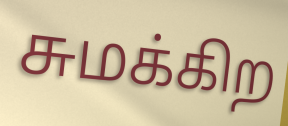
சுமக்கிற